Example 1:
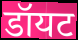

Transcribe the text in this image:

डॉयट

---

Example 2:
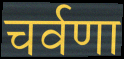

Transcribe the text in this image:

चर्वणा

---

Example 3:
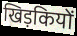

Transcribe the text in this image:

खिड़कियों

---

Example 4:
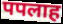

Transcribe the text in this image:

पपलाह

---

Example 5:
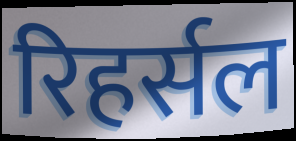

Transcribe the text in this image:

रिहर्सल